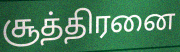
சூத்திரனை